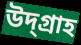
উদ্গ্রাহ